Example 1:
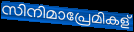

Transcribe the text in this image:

സിനിമാപ്രേമികള്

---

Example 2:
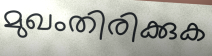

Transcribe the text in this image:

മുഖംതിരിക്കുക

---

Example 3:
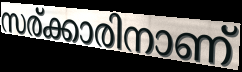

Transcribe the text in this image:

സര്ക്കാരിനാണ്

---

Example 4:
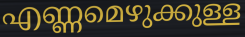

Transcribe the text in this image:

എണ്ണമെഴുക്കുള്ള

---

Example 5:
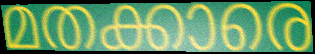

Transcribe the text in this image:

മതക്കാരെ